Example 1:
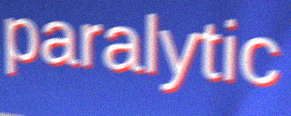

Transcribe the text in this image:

paralytic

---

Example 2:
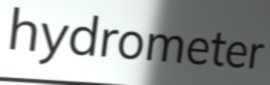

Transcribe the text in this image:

hydrometer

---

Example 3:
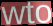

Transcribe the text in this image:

wto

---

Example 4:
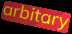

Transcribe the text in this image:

arbitary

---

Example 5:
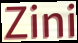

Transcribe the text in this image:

Zini